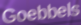
Goebbels